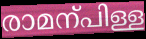
രാമന്പിള്ള